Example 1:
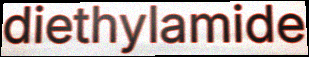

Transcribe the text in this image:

diethylamide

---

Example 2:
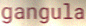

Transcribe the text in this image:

gangula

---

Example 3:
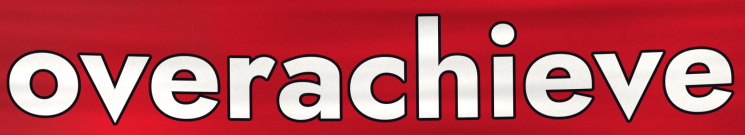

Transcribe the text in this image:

overachieve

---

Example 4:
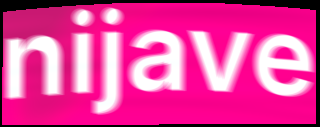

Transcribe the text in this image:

nijave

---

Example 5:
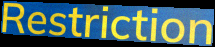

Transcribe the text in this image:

Restriction